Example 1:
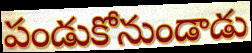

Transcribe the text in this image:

పండుకోనుండాడు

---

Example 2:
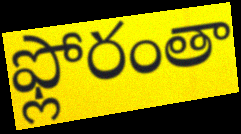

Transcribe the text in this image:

ఫ్లోరంతా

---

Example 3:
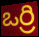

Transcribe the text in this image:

ఒర్రి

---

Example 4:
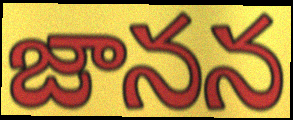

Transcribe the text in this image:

జానన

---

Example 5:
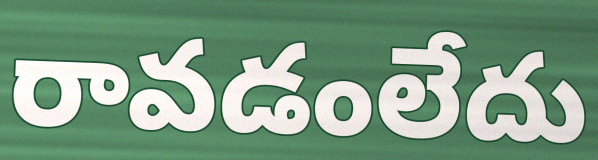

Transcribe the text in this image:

రావడంలేదు